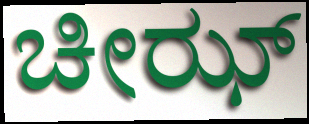
ಚೀಝ್